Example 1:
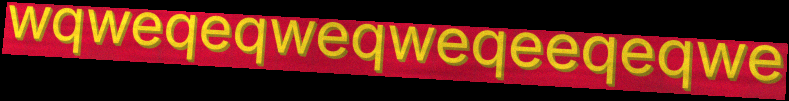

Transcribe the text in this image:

wqweqeqweqweqeeqeqwe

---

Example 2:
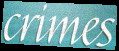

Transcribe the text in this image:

crimes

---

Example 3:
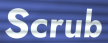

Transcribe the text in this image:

Scrub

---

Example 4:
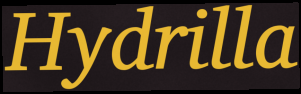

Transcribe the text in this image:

Hydrilla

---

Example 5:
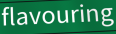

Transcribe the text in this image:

flavouring